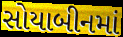
સોયાબીનમાં